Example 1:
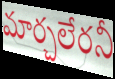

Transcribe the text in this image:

మార్చలేరనీ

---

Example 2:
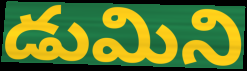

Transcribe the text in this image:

డుమిని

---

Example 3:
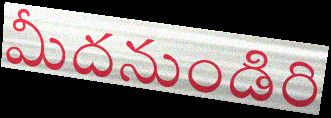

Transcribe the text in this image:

మీదనుండిరి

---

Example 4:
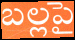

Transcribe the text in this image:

బల్లపై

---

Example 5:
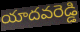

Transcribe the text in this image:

యాదవరెడ్డి